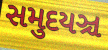
સમુદયઞ્ચ